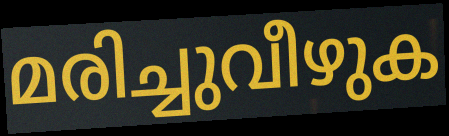
മരിച്ചുവീഴുക